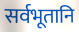
सर्वभूतानि